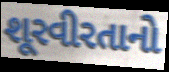
શૂરવીરતાનો